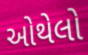
ઓથેલો